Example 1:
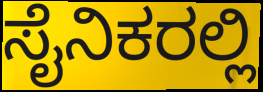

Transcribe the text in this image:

ಸೈನಿಕರಲ್ಲಿ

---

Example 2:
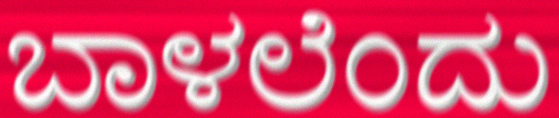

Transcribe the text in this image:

ಬಾಳಲೆಂದು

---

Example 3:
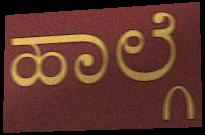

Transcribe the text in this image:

ಹಾಲ್ಗೆ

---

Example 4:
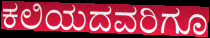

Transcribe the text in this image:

ಕಲಿಯದವರಿಗೂ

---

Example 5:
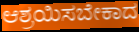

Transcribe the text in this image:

ಆಶ್ರಯಿಸಬೇಕಾದ